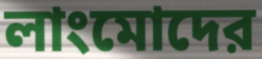
লাংমোদের